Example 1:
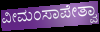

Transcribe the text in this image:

ವೀಮಂಸಾಪೇತ್ವಾ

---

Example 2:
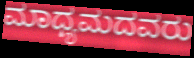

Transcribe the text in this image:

ಮಾಧ್ಯಮದವರು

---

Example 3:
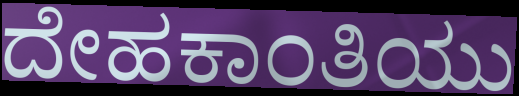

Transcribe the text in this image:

ದೇಹಕಾಂತಿಯು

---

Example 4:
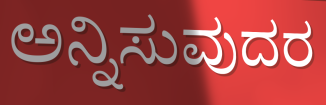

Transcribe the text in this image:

ಅನ್ನಿಸುವುದರ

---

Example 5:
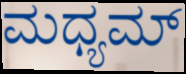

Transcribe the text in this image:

ಮಧ್ಯಮ್